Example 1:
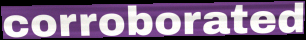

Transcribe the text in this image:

corroborated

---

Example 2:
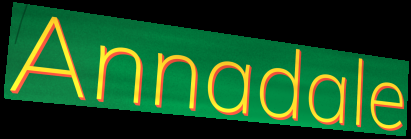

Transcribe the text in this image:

Annadale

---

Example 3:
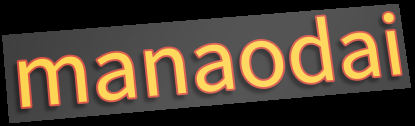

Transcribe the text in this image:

manaodai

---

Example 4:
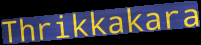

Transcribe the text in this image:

Thrikkakara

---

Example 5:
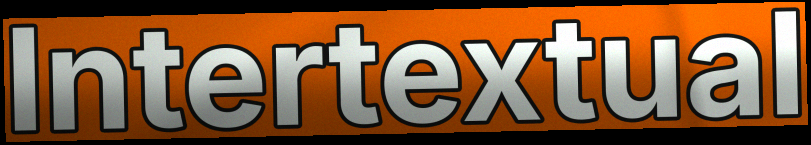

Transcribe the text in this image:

Intertextual